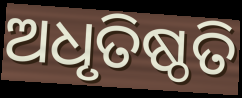
ଅଧୃତିଷ୍ଠତି